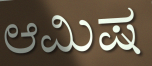
ಆಮಿಷ